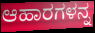
ಆಹಾರಗಳನ್ನ